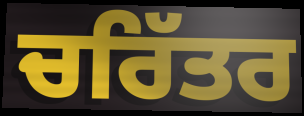
ਚਰਿੱਤਰ